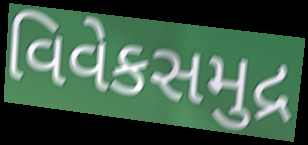
વિવેકસમુદ્ર